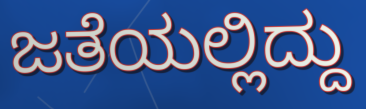
ಜತೆಯಲ್ಲಿದ್ದು